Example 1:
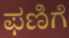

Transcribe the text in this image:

ಫಣಿಗೆ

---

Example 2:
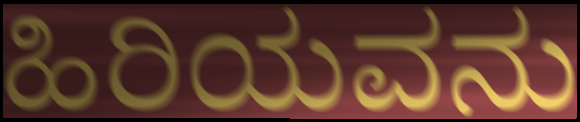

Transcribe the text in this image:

ಹಿರಿಯವನು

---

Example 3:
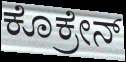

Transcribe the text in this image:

ಕೊಕ್ರೇನ್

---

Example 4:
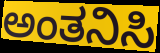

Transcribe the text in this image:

ಅಂತನಿಸಿ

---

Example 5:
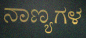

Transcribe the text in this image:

ನಾಣ್ಯಗಳ